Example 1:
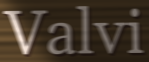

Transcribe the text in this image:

Valvi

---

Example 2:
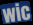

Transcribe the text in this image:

wic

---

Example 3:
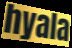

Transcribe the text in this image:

hyala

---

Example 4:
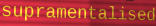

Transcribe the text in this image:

supramentalised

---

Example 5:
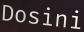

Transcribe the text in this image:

Dosini